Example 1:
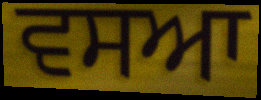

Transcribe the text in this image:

ਵਸਆ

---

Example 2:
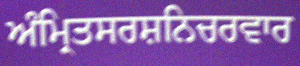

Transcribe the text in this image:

ਅੰਮ੍ਰਿਤਸਰਸ਼ਨਿਚਰਵਾਰ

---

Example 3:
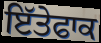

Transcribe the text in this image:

ਇੱਤੇਫਾਕ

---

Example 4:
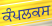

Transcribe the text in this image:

ਕੰਪਲਕਸ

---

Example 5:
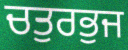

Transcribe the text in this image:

ਚਤੁਰਭੁਜ